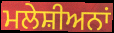
ਮਲੇਸ਼ੀਅਨਾਂ